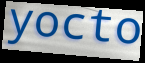
yocto